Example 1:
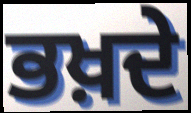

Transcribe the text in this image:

ਭਖ਼ਦੇ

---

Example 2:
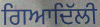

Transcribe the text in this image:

ਗਿਆਦਿੱਲੀ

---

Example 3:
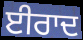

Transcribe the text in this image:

ਈਰਾਦ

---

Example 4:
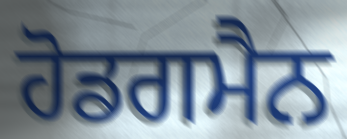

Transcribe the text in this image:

ਹੋਡਗਮੈਨ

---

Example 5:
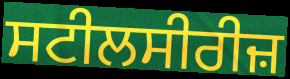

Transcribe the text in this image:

ਸਟੀਲਸੀਰੀਜ਼